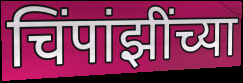
चिंपांझींच्या